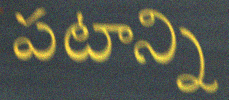
పటాన్ని